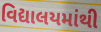
વિદ્યાલયમાંથી